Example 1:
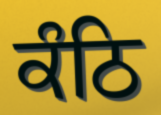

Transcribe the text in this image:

ਕੰਠਿ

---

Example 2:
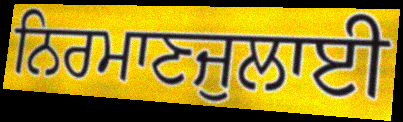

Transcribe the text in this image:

ਨਿਰਮਾਣਜੁਲਾਈ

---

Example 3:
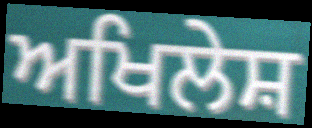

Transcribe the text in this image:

ਅਖਿਲੇਸ਼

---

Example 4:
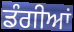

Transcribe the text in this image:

ਡੰਗੀਆਂ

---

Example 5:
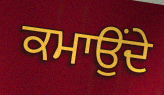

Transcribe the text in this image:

ਕਮਾਉਂਦੇ